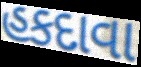
હકદાવા